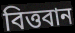
বিত্তবান